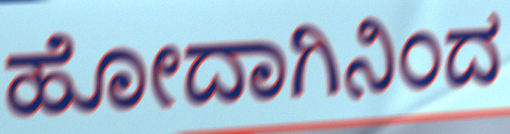
ಹೋದಾಗಿನಿಂದ